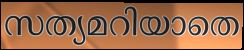
സത്യമറിയാതെ